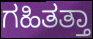
ಗಹಿತತ್ತಾ